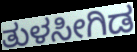
ತುಳಸೀಗಿಡ